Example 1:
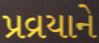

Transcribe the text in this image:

પ્રવ્રયાને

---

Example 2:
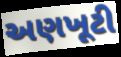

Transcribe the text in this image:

અણખૂટી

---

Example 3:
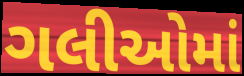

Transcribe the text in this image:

ગલીઓમાં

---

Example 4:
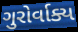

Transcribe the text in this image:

ગુરોર્વાક્ય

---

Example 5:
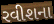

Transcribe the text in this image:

રવીશના